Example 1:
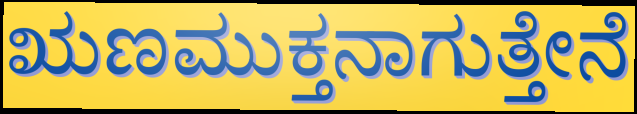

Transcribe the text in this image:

ಋಣಮುಕ್ತನಾಗುತ್ತೇನೆ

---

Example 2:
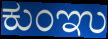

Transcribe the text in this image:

ಕುಂಞು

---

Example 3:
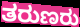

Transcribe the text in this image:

ತರುಣರು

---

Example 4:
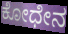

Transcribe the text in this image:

ಕೋಧೇನ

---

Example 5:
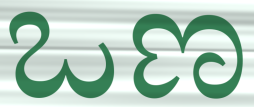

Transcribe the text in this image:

ಒಣ